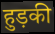
हुड़की